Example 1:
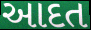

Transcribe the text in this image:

આદત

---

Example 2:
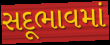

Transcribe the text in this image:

સદૂભાવમાં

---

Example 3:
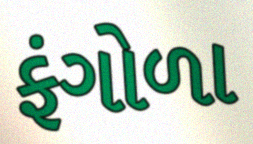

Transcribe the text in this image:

ફંગોળા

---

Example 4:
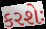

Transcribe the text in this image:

કરશેઃ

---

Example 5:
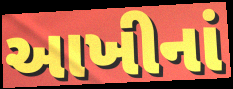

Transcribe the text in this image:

આખીનાં